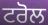
ਟਰੋਲ